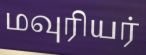
மவுரியர்